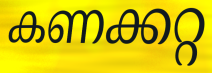
കണക്കറ്റ